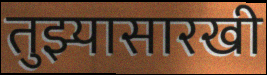
तुझ्यासारखी